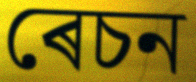
ৰেচন